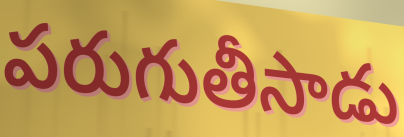
పరుగుతీసాడు